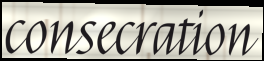
consecration